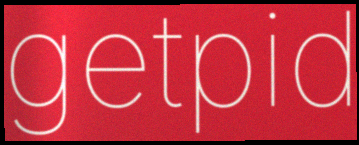
getpid